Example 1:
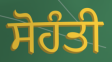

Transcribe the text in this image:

ਸੋਹੰਤੀ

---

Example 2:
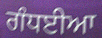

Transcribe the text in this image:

ਗੰਧਈਆ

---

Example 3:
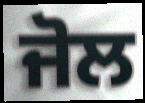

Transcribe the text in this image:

ਜੋਲ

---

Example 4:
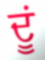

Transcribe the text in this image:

ਦੂਂ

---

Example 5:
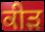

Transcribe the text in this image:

ਕੀੜ